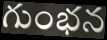
గుంభన